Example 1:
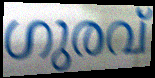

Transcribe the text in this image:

ഗുരവ്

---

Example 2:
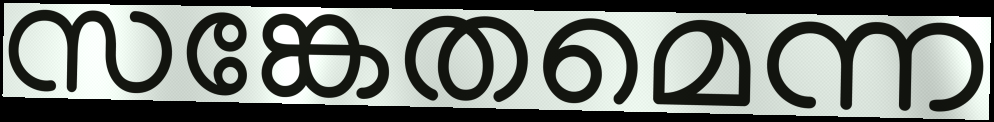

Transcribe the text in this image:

സങ്കേതമെന്ന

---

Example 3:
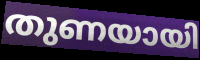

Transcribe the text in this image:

തുണയായി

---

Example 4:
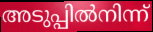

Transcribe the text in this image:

അടുപ്പിൽനിന്ന്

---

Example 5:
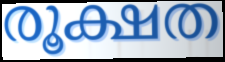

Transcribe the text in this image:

രൂക്ഷത